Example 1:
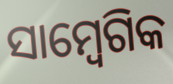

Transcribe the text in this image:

ସାମ୍ବେଗିକ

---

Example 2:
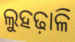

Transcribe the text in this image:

ଲୁହଢ଼ାଳି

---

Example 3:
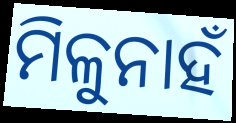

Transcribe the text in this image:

ମିଳୁନାହଁ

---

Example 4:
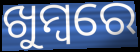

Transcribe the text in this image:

ଖୁମ୍ବରେ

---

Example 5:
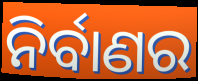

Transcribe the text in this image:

ନିର୍ବାଣର